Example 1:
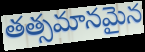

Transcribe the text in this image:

తత్సమానమైన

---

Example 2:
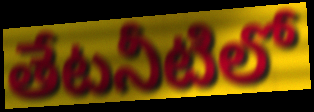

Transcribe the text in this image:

తేటనీటిలో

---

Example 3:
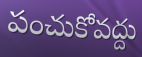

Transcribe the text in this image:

పంచుకోవద్దు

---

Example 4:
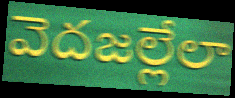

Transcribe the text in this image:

వెదజల్లేలా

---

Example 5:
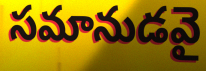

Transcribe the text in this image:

సమానుడవై